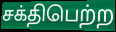
சக்திபெற்ற